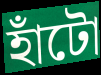
হাঁটো